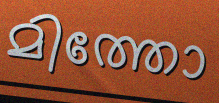
മിത്തോ